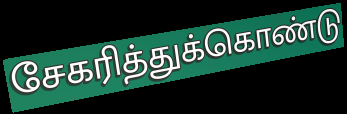
சேகரித்துக்கொண்டு